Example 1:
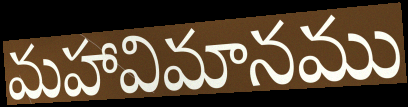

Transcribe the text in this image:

మహావిమానము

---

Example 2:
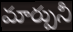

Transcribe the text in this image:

మార్పునీ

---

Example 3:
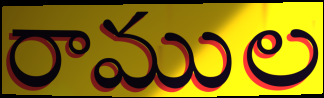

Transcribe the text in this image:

రాముల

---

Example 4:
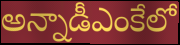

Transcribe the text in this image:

అన్నాడీఎంకేలో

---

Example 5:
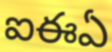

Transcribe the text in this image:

ఐఈఏ